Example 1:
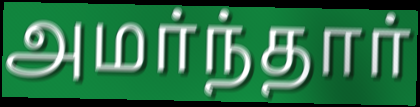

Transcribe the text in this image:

அமர்ந்தார்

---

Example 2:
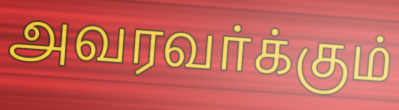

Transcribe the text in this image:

அவரவர்க்கும்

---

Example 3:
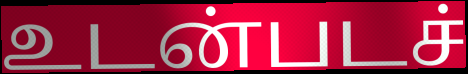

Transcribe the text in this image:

உடன்படச்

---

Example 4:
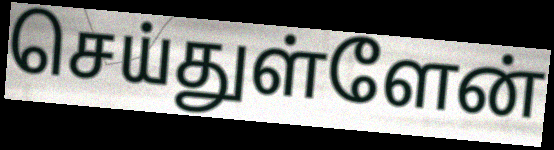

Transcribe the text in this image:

செய்துள்ளேன்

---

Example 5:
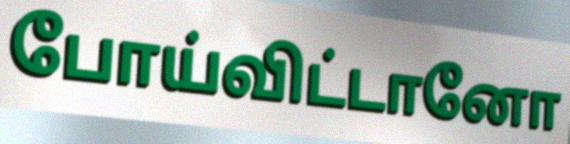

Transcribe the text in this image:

போய்விட்டானோ